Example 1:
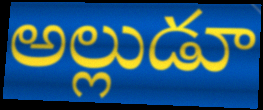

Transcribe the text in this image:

అల్లుడూ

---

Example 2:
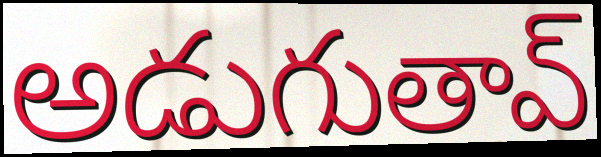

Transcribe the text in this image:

అడుగుతావ్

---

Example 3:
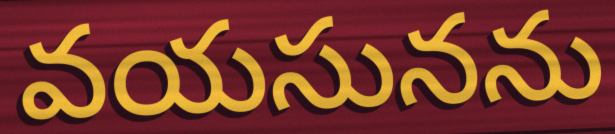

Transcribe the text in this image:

వయసునను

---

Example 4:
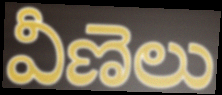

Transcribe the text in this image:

వీణెలు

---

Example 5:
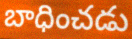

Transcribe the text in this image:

బాధించడు